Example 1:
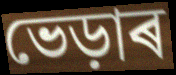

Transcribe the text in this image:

ভেড়াৰ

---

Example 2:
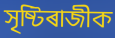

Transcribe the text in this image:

সৃষ্টিৰাজীক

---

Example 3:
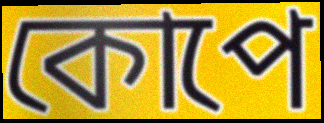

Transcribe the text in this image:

কোপে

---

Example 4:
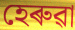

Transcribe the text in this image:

হেৰুৱা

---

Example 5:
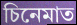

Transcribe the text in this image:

চিনেমাত